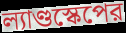
ল্যাণ্ডস্কেপের